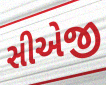
સીએજી